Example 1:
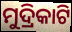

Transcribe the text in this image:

ମୁଦ୍ରିକାଟି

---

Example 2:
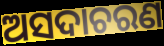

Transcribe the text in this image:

ଅସଦାଚରଣ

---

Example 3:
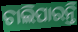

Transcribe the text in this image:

ଚାଲିପାରନ୍ତି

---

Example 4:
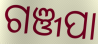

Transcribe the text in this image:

ଗଞ୍ଜପା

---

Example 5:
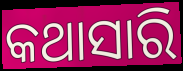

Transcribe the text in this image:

କଥାସାରି